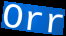
Orr